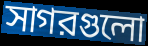
সাগরগুলো